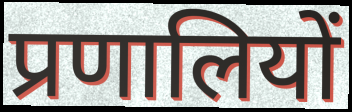
प्रणालियों